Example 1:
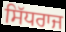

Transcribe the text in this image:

ਸਿੱਧਰਾਜ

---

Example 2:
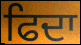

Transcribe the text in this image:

ਫਿਦਾ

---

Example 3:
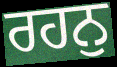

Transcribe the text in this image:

ਰਹਨੁ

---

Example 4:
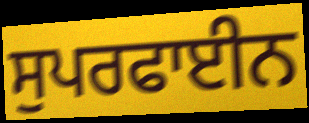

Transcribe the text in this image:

ਸੁਪਰਫਾਈਨ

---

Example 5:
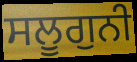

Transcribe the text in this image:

ਸਲੂਗੁਨੀ